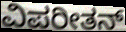
ವಿಪರೀತನ್